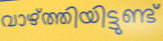
വാഴ്ത്തിയിട്ടുണ്ട്